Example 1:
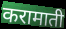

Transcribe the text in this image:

करामाती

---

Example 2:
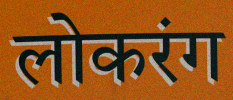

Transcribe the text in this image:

लोकरंग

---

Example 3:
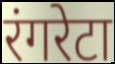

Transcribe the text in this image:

रंगरेटा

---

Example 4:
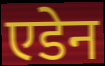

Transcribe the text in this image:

एडेन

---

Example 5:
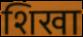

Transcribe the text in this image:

शिखा